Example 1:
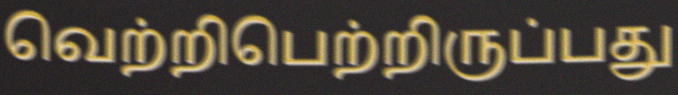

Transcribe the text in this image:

வெற்றிபெற்றிருப்பது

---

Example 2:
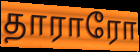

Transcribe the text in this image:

தாராரோ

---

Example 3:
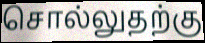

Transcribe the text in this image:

சொல்லுதற்கு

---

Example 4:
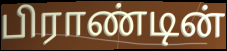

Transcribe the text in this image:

பிராண்டின்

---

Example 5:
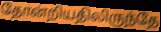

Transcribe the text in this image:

தோன்றியதிலிருந்தே